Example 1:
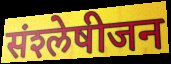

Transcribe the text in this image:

संश्लेषीजन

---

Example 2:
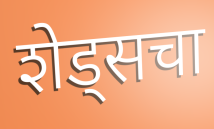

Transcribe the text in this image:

शेड्सचा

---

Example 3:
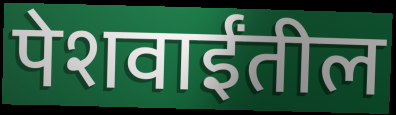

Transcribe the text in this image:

पेशवाईंतील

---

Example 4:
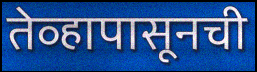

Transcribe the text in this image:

तेव्हापासूनची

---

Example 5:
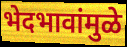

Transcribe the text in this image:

भेदभावांमुळे